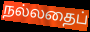
நல்லதைப்